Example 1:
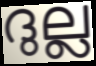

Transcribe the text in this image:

ദുല്ല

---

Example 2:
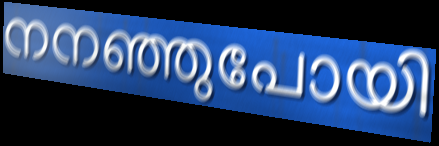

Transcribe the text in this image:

നനഞ്ഞുപോയി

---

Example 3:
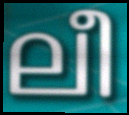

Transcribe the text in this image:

ലീ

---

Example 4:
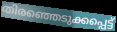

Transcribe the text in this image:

തിരഞ്ഞെടുക്കപ്പെട്ട്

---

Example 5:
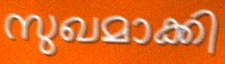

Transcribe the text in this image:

സുഖമാക്കി